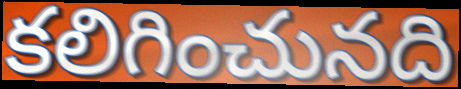
కలిగించునది